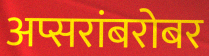
अप्सरांबरोबर